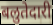
बलुतेदारी